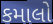
કમાલો